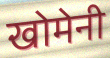
खोमेनी